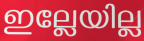
ഇല്ലേയില്ല